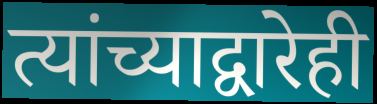
त्यांच्याद्वारेही